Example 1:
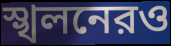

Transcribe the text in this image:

স্খলনেরও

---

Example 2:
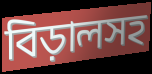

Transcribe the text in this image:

বিড়ালসহ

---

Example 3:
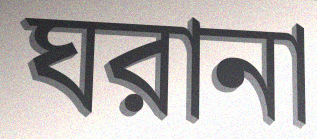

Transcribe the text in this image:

ঘরানা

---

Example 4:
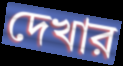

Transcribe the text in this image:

দেখার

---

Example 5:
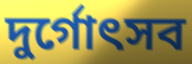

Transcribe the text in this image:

দুর্গোৎসব